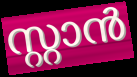
സ്റ്റാൻ